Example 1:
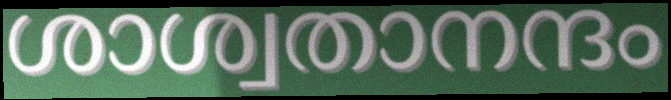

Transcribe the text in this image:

ശാശ്വതാനന്ദം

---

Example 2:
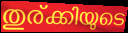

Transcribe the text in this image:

തുര്ക്കിയുടെ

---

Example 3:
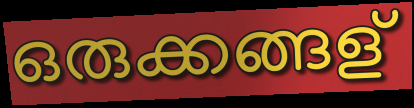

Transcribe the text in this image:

ഒരുക്കങ്ങള്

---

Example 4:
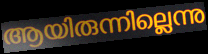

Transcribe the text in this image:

ആയിരുന്നില്ലെന്നു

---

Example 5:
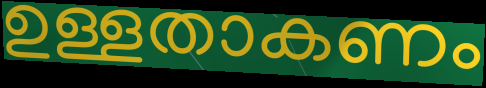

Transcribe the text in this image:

ഉള്ളതാകണം